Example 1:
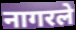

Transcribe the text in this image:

नागरले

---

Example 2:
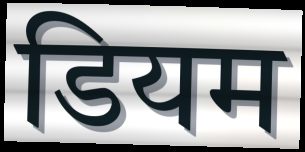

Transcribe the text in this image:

डियम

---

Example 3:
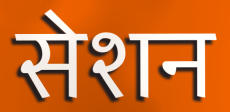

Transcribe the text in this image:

सेशन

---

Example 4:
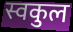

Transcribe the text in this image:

स्वकुल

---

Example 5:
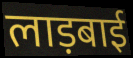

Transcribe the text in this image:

लाड़बाई